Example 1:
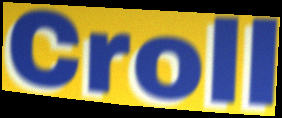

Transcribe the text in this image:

Croll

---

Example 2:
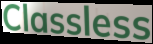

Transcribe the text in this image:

Classless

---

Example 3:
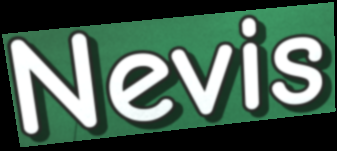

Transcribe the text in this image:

Nevis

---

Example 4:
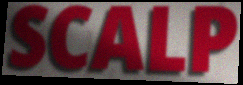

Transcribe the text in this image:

SCALP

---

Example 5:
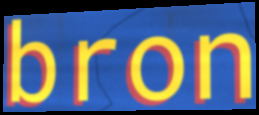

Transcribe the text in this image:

bron